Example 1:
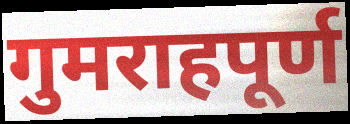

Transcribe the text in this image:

गुमराहपूर्ण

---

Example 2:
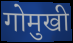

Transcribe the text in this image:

गोमुखी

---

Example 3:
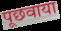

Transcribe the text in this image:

पूछवाया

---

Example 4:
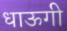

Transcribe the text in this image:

धाऊगी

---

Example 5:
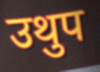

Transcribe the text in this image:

उथुप